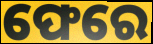
ଫେରେ